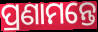
ପ୍ରଣାମନ୍ତେ